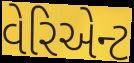
વેરિએન્ટ